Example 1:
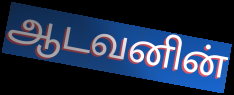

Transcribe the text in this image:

ஆடவனின்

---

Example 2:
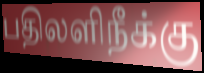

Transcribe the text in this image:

பதிலளிநீக்கு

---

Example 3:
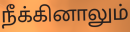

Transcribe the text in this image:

நீக்கினாலும்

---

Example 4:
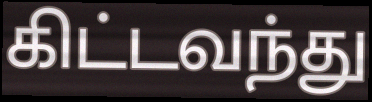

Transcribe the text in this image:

கிட்டவந்து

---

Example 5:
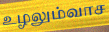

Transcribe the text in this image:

உழலும்வாச